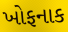
ખોફનાક